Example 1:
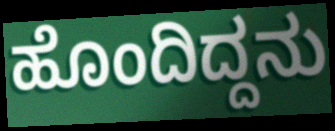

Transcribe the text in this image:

ಹೊಂದಿದ್ದನು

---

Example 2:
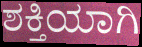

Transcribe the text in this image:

ಶಕ್ತಿಯಾಗಿ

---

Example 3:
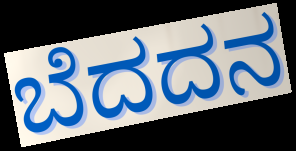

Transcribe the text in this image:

ಬೆದದನ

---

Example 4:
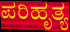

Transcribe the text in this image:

ಪರಿಹೃತ್ಯ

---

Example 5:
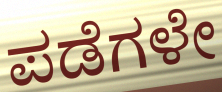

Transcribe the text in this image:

ಪಡೆಗಳೇ